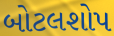
બોટલશોપ